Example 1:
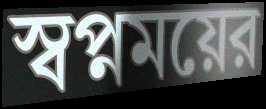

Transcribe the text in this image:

স্বপ্নময়ের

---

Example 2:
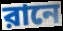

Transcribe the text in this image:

রানে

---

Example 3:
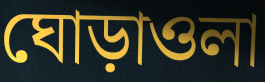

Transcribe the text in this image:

ঘোড়াওলা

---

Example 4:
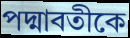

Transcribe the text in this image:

পদ্মাবতীকে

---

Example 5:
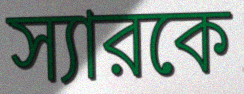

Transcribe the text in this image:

স্যারকে